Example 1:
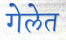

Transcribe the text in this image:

गेलेत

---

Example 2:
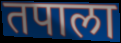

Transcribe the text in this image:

तपाला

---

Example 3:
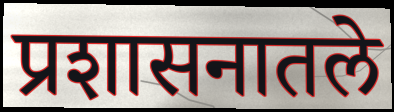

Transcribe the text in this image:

प्रशासनातले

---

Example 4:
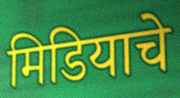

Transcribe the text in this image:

मिडियाचे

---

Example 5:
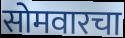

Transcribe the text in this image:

सोमवारचा